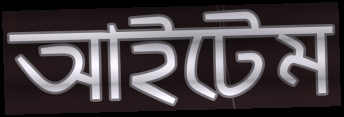
আইটেম